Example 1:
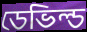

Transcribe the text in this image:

ডেভিল্ড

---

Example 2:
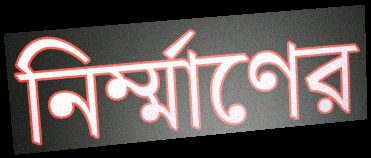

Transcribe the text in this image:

নির্ম্মাণের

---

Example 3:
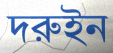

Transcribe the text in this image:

দরুইন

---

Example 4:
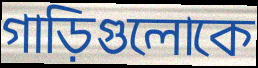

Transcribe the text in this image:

গাড়িগুলোকে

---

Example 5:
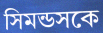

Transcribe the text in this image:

সিমন্ডসকে